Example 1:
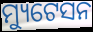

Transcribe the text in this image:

ମ୍ୟୁଟେସନ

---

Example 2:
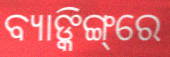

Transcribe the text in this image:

ବ୍ୟାଙ୍କିଙ୍ଗ୍‌ରେ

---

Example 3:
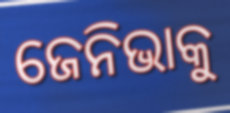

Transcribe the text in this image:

ଜେନିଭାକୁ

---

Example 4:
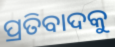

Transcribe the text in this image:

ପ୍ରତିବାଦକୁ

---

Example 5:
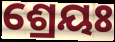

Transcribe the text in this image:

ଶ୍ରେୟଃ